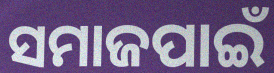
ସମାଜପାଇଁ